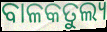
ବାଳକତୁଲ୍ୟ